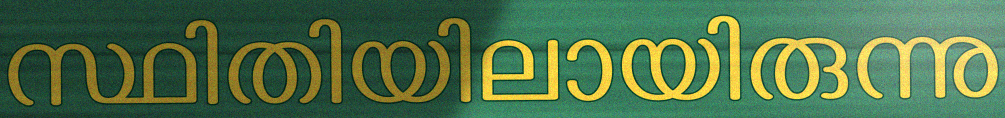
സ്ഥിതിയിലായിരുന്നു